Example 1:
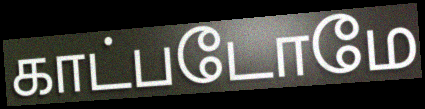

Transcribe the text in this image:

காட்படோமே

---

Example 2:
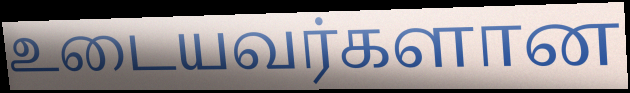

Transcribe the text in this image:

உடையவர்களான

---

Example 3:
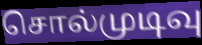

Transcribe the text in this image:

சொல்முடிவு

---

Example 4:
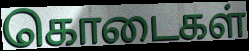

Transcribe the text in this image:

கொடைகள்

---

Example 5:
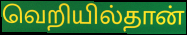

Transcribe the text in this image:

வெறியில்தான்